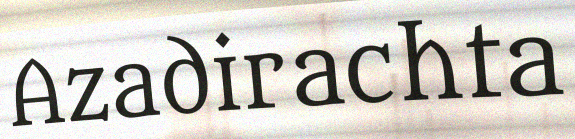
Azadirachta